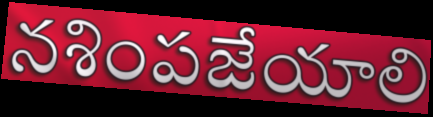
నశింపజేయాలి